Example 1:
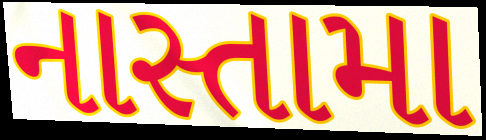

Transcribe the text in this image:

નાસ્તામા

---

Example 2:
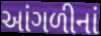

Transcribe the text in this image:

આંગળીનાં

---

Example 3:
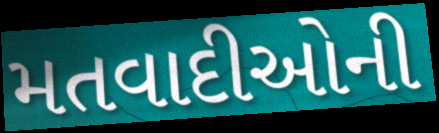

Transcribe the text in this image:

મતવાદીઓની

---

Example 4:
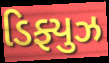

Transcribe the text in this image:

ડિફ્યુઝ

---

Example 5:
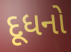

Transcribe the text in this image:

દૂધનો